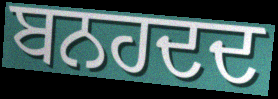
ਬਨਹਦਦ